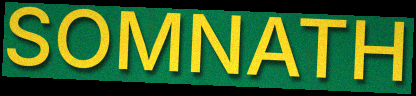
SOMNATH